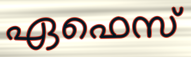
ഏഫെസ്